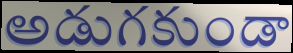
అడుగకుండా